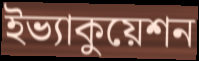
ইভ্যাকুয়েশন